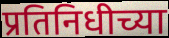
प्रतिनिधीच्या